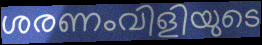
ശരണംവിളിയുടെ